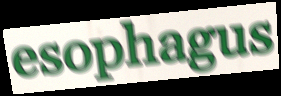
esophagus